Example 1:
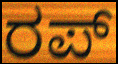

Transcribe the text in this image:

ರಪ್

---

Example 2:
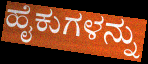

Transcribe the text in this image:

ಹೈಕುಗಳನ್ನು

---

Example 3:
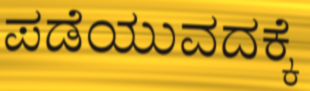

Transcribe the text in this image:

ಪಡೆಯುವದಕ್ಕೆ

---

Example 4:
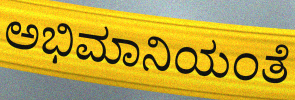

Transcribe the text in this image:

ಅಭಿಮಾನಿಯಂತೆ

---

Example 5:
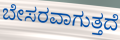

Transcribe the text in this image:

ಬೇಸರವಾಗುತ್ತದೆ